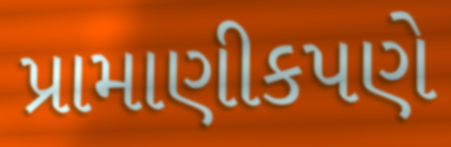
પ્રામાણીકપણે